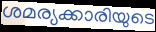
ശമര്യക്കാരിയുടെ